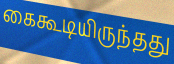
கைகூடியிருந்தது